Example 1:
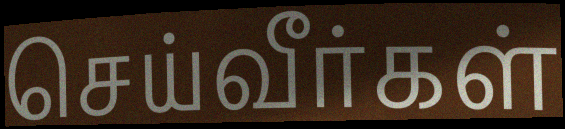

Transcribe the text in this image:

செய்வீர்கள்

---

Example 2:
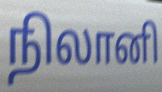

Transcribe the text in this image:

நிலானி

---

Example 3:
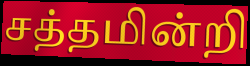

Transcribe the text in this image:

சத்தமின்றி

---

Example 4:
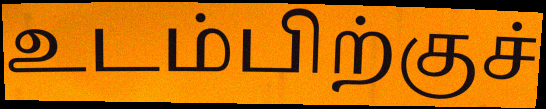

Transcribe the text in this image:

உடம்பிற்குச்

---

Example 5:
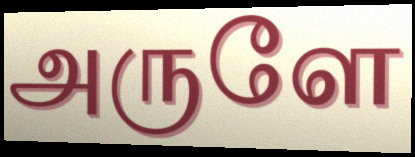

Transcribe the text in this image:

அருளே